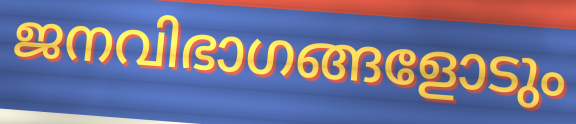
ജനവിഭാഗങ്ങളോടും